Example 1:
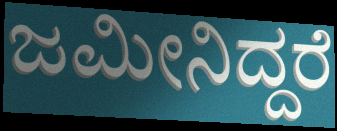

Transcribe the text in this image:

ಜಮೀನಿದ್ದರೆ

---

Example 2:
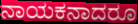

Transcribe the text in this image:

ನಾಯಕನಾದರೂ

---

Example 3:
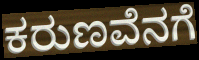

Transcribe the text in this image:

ಕರುಣವೆನಗೆ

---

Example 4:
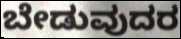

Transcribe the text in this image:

ಬೇಡುವುದರ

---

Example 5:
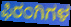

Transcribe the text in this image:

ಫಿರಂಗಿಗಳ